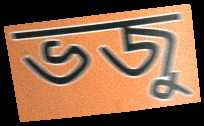
ভজু